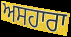
ਅਸਹਾਰਾ